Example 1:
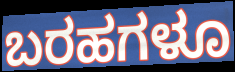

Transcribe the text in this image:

ಬರಹಗಳೂ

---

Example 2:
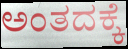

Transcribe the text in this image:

ಅಂತದಕ್ಕೆ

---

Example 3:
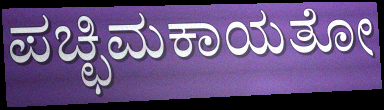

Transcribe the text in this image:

ಪಚ್ಛಿಮಕಾಯತೋ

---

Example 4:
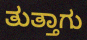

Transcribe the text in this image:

ತುತ್ತಾಗು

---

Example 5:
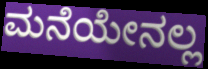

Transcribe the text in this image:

ಮನೆಯೇನಲ್ಲ